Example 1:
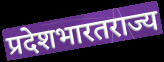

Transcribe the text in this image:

प्रदेशभारतराज्य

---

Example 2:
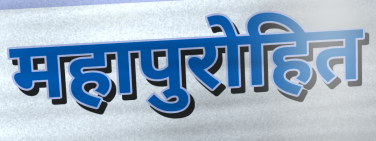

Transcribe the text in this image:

महापुरोहित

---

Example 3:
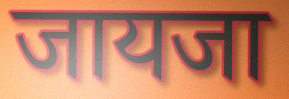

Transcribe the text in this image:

जायजा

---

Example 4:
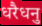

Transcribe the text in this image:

धरैधनु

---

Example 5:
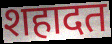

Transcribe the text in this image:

शहादत